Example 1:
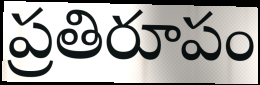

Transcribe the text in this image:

ప్రతిరూపం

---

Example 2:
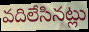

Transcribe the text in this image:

వదిలేసినట్లు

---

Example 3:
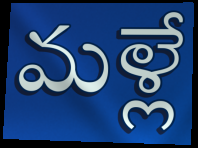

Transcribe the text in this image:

మళ్లే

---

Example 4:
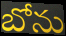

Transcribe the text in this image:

బోను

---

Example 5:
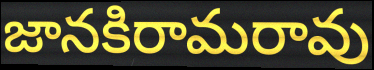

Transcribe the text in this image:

జానకిరామరావు